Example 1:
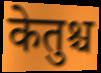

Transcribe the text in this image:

केतुश्च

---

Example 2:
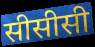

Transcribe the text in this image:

सीसीसी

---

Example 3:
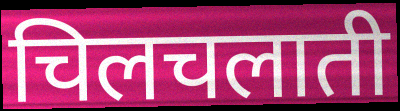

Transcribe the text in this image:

चिलचलाती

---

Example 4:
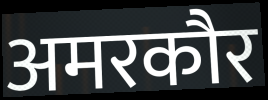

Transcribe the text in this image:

अमरकौर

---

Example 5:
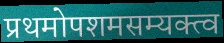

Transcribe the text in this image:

प्रथमोपशमसम्यक्त्व